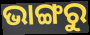
ଭାଙ୍ଗରୁ